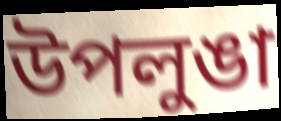
উপলুঙা